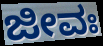
ಜೀವಃ